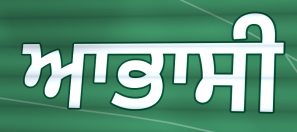
ਆਭਾਸੀ